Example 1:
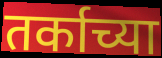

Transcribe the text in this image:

तर्काच्या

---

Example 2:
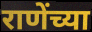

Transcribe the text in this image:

राणेंच्या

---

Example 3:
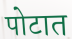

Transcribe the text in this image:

पोटात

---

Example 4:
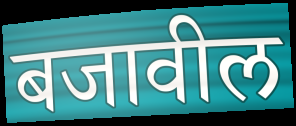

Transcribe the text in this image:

बजावील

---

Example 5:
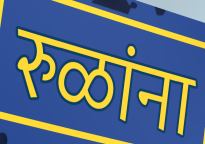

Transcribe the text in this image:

रुळांना